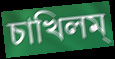
চাখিলম্